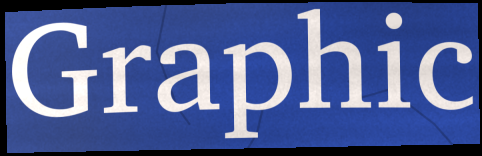
Graphic